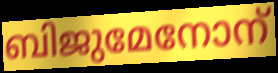
ബിജുമേനോന്